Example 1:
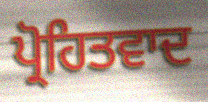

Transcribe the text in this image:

ਪ੍ਰੋਹਿਤਵਾਦ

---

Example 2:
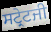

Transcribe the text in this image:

ਸਟ੍ਰੇਟਜੀ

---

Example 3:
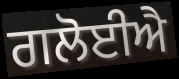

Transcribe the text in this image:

ਗਲੋਈਐ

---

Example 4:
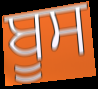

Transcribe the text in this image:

ਬੂਸ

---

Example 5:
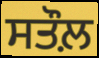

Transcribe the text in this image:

ਸਤੌਲ਼